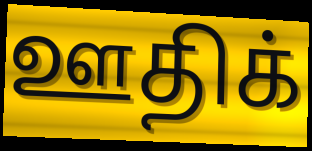
ஊதிக்